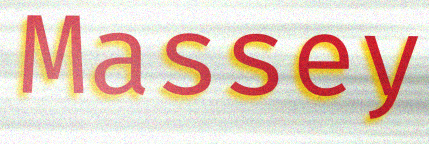
Massey